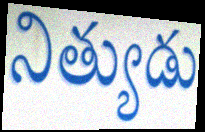
నిత్యుడు